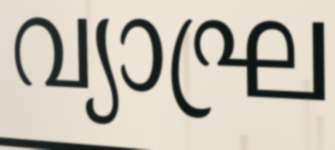
വ്യാഘ്ര